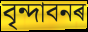
বৃন্দাবনৰ